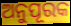
ଅନୁପୂରକ